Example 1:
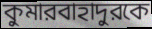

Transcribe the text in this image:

কুমারবাহাদুরকে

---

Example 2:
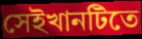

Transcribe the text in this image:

সেইখানটিতে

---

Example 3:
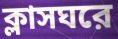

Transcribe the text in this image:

ক্লাসঘরে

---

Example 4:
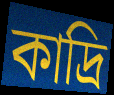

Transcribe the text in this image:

কাদ্রি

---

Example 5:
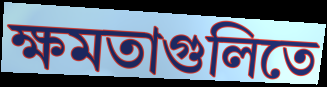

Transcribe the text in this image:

ক্ষমতাগুলিতে